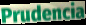
Prudencia